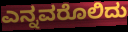
ಎನ್ನವರೊಲಿದು